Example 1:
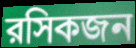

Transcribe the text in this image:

রসিকজন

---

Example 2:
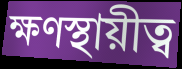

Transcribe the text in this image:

ক্ষণস্থায়ীত্ব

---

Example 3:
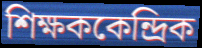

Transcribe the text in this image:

শিক্ষককেন্দ্রিক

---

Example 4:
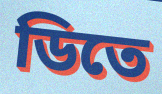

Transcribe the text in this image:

ডিতে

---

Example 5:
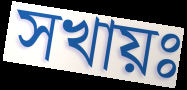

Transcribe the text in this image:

সখায়ঃ